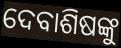
ଦେବାଶିଷଙ୍କୁ